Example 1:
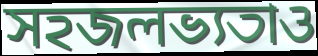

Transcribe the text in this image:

সহজলভ্যতাও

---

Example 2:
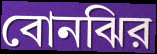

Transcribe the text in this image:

বোনঝির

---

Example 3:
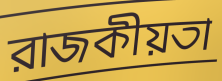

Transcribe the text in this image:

রাজকীয়তা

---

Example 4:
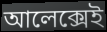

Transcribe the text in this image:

আলেক্সেই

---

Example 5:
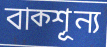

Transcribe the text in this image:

বাক্শূন্য